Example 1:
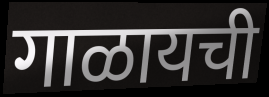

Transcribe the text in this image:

गाळायची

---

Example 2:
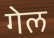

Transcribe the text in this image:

गेल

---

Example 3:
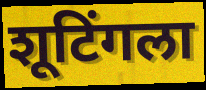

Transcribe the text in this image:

शूटिंगला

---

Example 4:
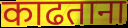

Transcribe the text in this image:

काढताना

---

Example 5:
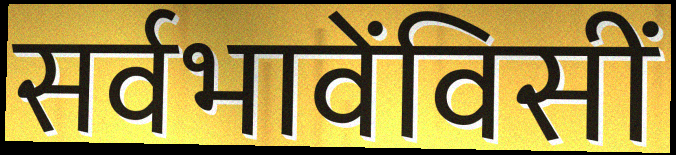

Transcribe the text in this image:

सर्वभावेंविसीं